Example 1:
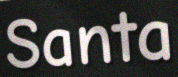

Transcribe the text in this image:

Santa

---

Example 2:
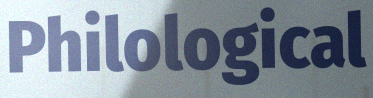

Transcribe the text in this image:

Philological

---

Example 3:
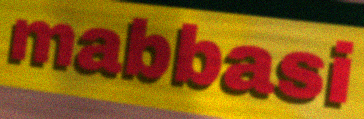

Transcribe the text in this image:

mabbasi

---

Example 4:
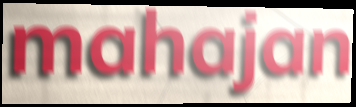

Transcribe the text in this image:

mahajan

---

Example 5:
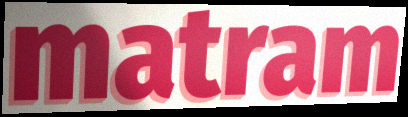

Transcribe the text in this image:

matram